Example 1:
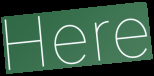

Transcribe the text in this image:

Here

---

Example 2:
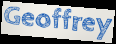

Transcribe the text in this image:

Geoffrey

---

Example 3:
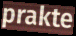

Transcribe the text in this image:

prakte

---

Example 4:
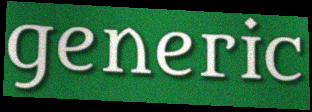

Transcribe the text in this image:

generic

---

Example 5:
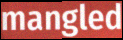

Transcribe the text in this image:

mangled